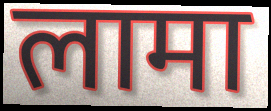
लामा